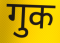
गुक